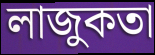
লাজুকতা